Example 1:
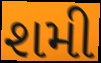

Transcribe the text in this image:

શમી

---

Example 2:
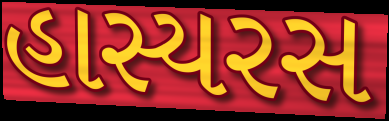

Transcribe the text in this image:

હાસ્યરસ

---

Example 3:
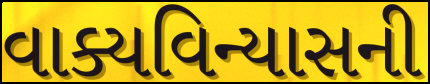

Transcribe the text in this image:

વાક્યવિન્યાસની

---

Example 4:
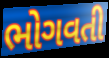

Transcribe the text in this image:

ભોગવતી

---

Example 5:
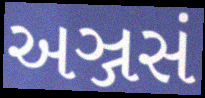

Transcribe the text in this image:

અઞ્જસં